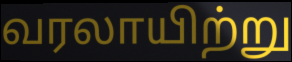
வரலாயிற்று